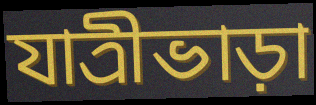
যাত্রীভাড়া